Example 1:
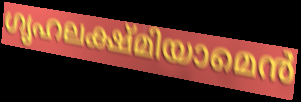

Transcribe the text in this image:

ഗൃഹലക്ഷ്മിയാമെൻ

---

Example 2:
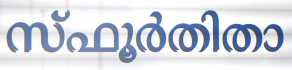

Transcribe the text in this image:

സ്ഫൂർതിതാ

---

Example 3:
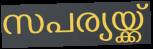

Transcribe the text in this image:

സപര്യയ്ക്ക്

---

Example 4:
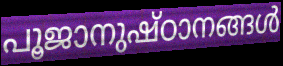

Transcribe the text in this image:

പൂജാനുഷ്ഠാനങ്ങൾ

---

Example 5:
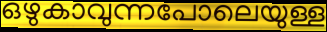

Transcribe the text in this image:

ഒഴുകാവുന്നപോലെയുള്ള